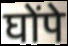
घोंपे